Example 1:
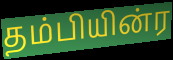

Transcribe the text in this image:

தம்பியின்ர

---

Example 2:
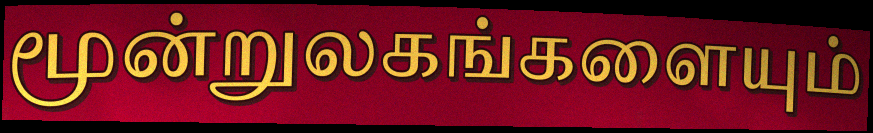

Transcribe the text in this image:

மூன்றுலகங்களையும்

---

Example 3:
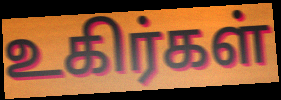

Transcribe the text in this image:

உகிர்கள்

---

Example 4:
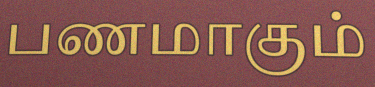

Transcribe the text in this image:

பணமாகும்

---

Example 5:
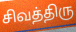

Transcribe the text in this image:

சிவத்திரு